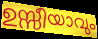
ഉസ്സീയാവും